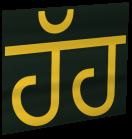
ਹੱਹ